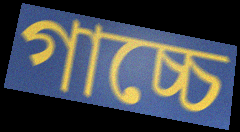
গাচ্চে